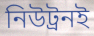
নিউট্রনই